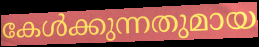
കേൾക്കുന്നതുമായ